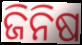
ଜିନିଷ